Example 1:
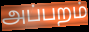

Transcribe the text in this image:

அப்பறம்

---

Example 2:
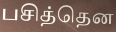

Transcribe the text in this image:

பசித்தென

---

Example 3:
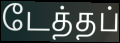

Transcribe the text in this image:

டேத்தப்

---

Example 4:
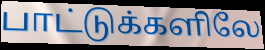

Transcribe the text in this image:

பாட்டுக்களிலே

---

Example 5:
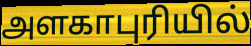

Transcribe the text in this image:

அளகாபுரியில்